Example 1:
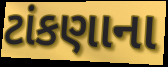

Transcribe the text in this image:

ટાંકણાના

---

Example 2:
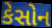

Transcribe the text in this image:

કેસોન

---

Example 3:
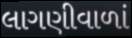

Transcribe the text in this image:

લાગણીવાળાં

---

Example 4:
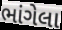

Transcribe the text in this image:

ભાંગેલા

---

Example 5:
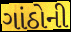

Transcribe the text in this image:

ગાંઠોની